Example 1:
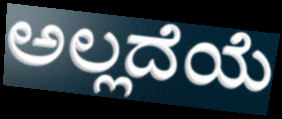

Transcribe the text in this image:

ಅಲ್ಲದೆಯೆ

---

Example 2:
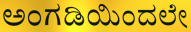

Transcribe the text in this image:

ಅಂಗಡಿಯಿಂದಲೇ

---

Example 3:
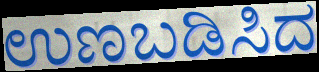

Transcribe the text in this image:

ಉಣಬಡಿಸಿದ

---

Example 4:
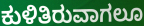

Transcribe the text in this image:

ಕುಳಿತಿರುವಾಗಲೂ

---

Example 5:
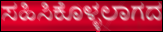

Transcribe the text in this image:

ಸಹಿಸಿಕೊಳ್ಳಲಾಗದ